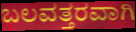
ಬಲವತ್ತರವಾಗಿ